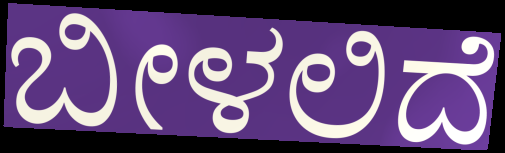
ಬೀಳಲಿದೆ